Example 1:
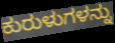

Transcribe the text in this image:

ಕುರುಳುಗಳನ್ನು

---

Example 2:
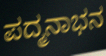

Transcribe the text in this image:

ಪದ್ಮನಾಭನ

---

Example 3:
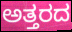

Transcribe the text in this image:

ಅತ್ತರದ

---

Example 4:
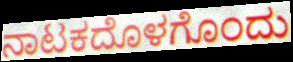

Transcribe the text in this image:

ನಾಟಕದೊಳಗೊಂದು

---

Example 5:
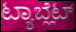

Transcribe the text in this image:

ಟ್ಯಾಬ್ಲೆಟ್